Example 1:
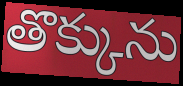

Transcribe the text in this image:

తొక్కును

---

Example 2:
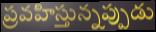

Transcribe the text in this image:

ప్రవహిస్తున్నప్పుడు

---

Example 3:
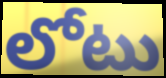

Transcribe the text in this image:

లోటు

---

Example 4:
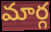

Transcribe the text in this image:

మార్గ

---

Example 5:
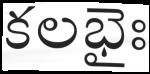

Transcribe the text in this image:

కలభైః